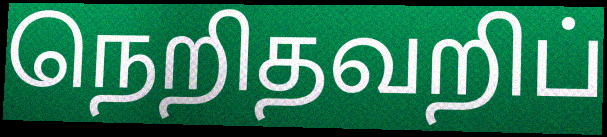
நெறிதவறிப்